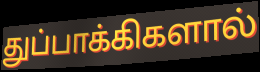
துப்பாக்கிகளால்